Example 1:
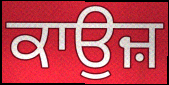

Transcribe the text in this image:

ਕਾਉਜ਼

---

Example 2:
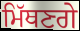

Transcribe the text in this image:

ਮਿੱਥਣਗੇ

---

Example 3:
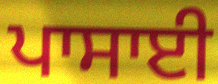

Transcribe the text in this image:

ਪਾਸਾਈ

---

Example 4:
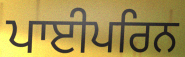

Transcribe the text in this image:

ਪਾਈਪਰਿਨ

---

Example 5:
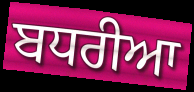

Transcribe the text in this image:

ਬਧਰੀਆ